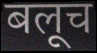
बलूच